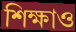
শিক্ষাও